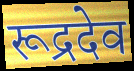
रूद्रदेव